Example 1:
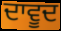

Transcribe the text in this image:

ਦਾਵੂਦ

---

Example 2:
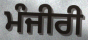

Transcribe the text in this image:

ਮੰਜੀਰੀ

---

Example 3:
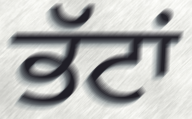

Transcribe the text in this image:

ਭੱਟਾਂ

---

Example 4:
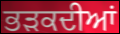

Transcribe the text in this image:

ਭੜਕਦੀਆਂ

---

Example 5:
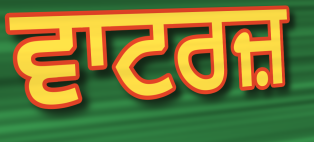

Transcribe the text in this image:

ਵਾਟਰਜ਼